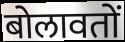
बोलावतों